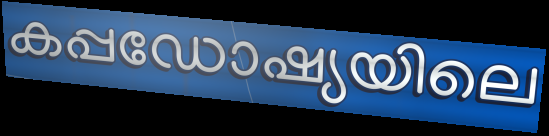
കപ്പഡോഷ്യയിലെ